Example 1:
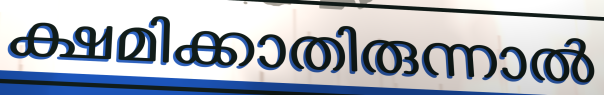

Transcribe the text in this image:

ക്ഷമിക്കാതിരുന്നാൽ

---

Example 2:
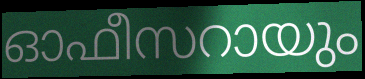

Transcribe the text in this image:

ഓഫീസറായും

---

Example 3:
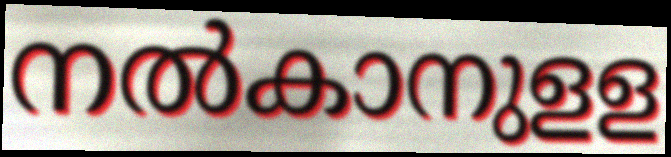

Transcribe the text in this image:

നൽകാനുളള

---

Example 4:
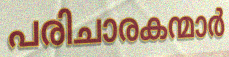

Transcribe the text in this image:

പരിചാരകന്മാർ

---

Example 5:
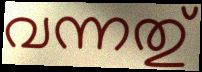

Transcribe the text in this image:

വന്നതു്